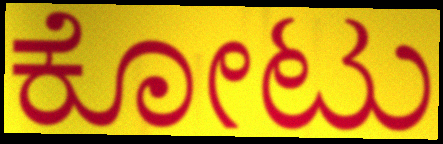
ಕೋಟು